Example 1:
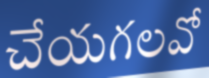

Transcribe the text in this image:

చేయగలవో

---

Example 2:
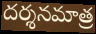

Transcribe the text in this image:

దర్శనమాత్ర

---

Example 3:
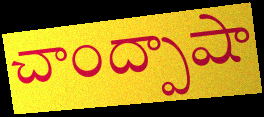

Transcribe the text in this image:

చాంద్పాషా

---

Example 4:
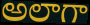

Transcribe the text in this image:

అలాగా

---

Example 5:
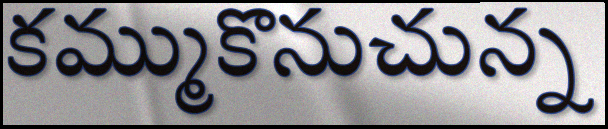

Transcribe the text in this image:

కమ్ముకొనుచున్న